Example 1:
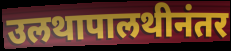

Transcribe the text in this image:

उलथापालथीनंतर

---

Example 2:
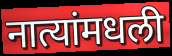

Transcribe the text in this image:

नात्यांमधली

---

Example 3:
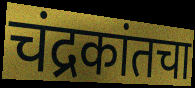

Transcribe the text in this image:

चंद्रकांतचा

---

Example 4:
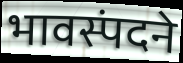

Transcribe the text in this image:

भावस्पंदने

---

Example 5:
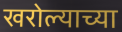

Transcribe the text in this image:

खरोल्याच्या